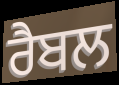
ਰੈਬਲ